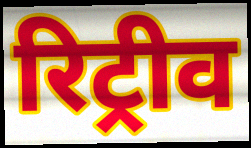
रिट्रीव